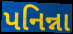
પનિન્ના